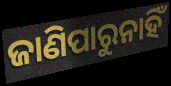
ଜାଣିପାରୁନାହିଁ